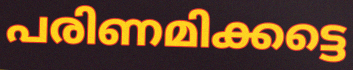
പരിണമിക്കട്ടെ